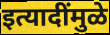
इत्यादींमुळे